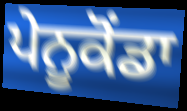
ਪੇਨੂਕੋਂਡਾ